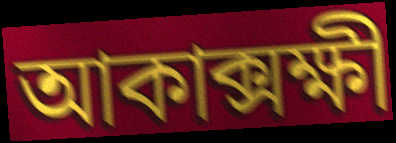
আকাক্সক্ষী